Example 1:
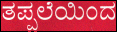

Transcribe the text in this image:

ತಪ್ಪಲೆಯಿಂದ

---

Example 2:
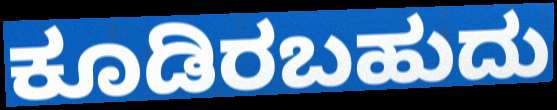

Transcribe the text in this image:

ಕೂಡಿರಬಹುದು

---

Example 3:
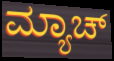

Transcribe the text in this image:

ಮ್ಯಾಚ್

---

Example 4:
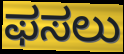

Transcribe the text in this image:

ಫಸಲು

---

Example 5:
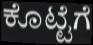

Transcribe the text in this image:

ಕೊಟ್ಟೆಗೆ